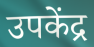
उपकेंद्र